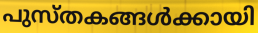
പുസ്തകങ്ങൾക്കായി